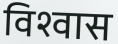
विश्वास